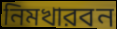
নিমখারবন